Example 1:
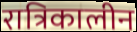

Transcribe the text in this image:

रात्रिकालीन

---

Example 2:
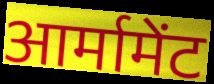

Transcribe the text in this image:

आर्मामेंट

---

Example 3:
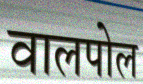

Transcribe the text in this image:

वालपोल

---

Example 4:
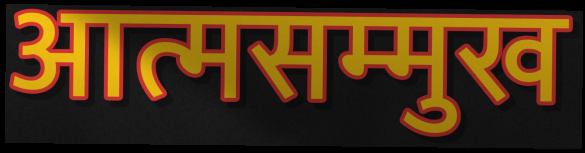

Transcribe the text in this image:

आत्मसम्मुख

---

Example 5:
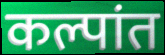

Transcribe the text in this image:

कल्पांत